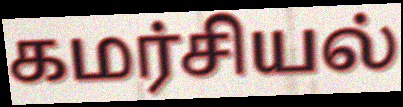
கமர்சியல்